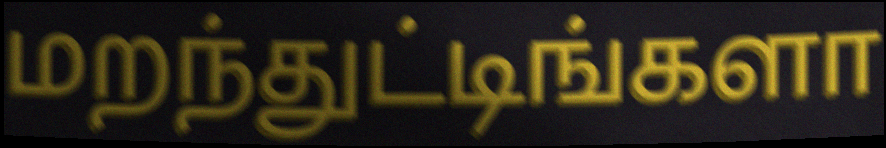
மறந்துட்டிங்களா